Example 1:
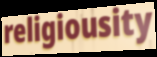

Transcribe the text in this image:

religiousity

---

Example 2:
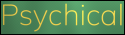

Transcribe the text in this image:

Psychical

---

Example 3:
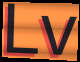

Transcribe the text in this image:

Lv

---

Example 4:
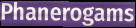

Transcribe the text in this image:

Phanerogams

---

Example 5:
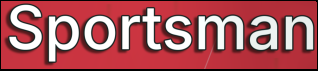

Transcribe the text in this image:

Sportsman